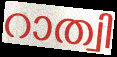
റാത്വി